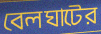
বেলঘাটের